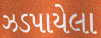
ઝડપાયેલા